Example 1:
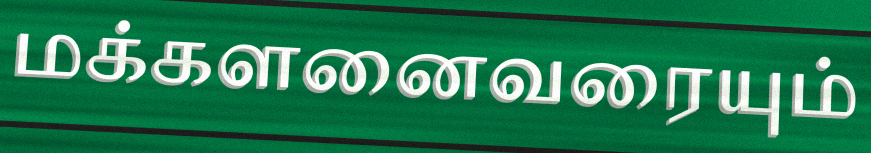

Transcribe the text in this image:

மக்களனைவரையும்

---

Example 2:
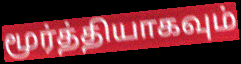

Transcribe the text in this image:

மூர்த்தியாகவும்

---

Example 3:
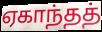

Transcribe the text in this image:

ஏகாந்தத்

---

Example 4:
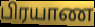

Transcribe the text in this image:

பிரயாண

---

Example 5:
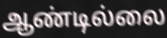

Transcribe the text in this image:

ஆண்டில்லை